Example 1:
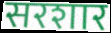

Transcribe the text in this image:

सरशार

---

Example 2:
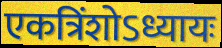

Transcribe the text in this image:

एकत्रिंशोऽध्यायः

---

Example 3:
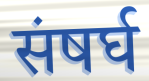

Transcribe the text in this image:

संषर्घ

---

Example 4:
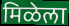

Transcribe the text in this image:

मिळेला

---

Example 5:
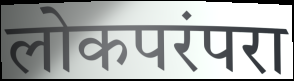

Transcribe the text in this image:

लोकपरंपरा